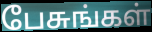
பேசுங்கள்